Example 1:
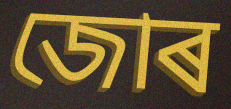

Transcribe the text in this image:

জোৰ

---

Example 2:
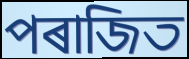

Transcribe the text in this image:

পৰাজিত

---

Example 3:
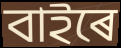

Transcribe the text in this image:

বাইৰে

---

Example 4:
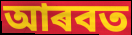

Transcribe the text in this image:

আৰবত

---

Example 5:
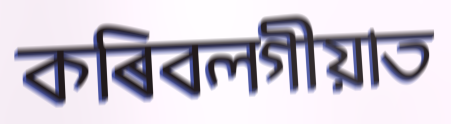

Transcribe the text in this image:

কৰিবলগীয়াত